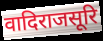
वादिराजसूरि